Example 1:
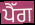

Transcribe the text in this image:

ਪੈੱਗ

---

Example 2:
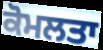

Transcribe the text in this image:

ਕੋਮਲਤਾ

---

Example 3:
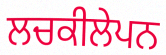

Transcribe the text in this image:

ਲਚਕੀਲੇਪਨ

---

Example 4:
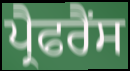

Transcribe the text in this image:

ਪ੍ਰੈਫਰੈਂਸ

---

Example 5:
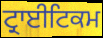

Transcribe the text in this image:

ਟ੍ਰਾਈਟਿਕਮ